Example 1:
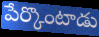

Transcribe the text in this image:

పేర్కొంటాడు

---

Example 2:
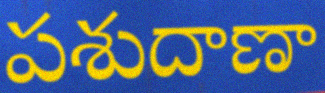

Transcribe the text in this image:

పశుదాణా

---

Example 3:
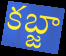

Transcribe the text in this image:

కబ్జా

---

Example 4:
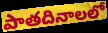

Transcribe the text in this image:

పాతదినాలలో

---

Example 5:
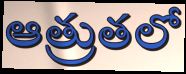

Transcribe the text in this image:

ఆత్రుతలో